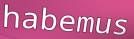
habemus